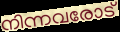
നിന്നവരോട്